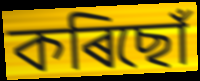
কৰিছোঁ